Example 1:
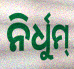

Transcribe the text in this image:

ନିର୍ଧୁମ୍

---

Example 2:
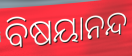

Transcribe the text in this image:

ବିଷୟାନନ୍ଦ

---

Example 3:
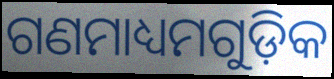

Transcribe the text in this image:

ଗଣମାଧ୍ୟମଗୁଡ଼ିକ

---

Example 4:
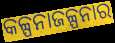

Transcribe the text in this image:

କଳ୍ପନାଜଳ୍ପନାର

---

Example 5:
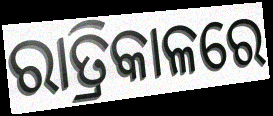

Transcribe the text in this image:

ରାତ୍ରିକାଳରେ